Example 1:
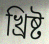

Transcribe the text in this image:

খ্রিষ্ট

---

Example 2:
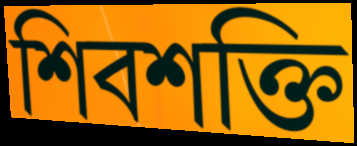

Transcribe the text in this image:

শিবশক্তি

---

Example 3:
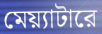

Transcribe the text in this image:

মেয়্যাটারে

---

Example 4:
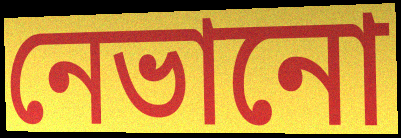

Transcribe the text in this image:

নেভানো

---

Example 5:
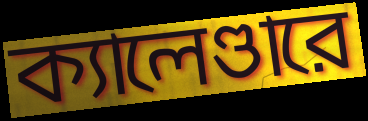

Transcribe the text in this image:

ক্যালেণ্ডারে